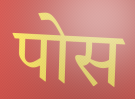
पोस